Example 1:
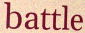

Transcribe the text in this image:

battle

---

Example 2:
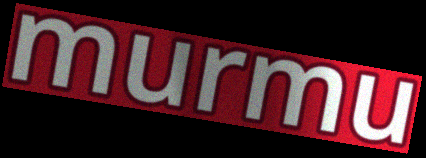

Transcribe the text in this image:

murmu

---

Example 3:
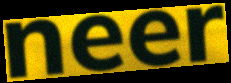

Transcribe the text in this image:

neer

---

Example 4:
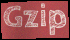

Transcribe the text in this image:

Gzip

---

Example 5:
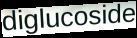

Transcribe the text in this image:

diglucoside